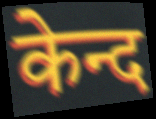
केन्द